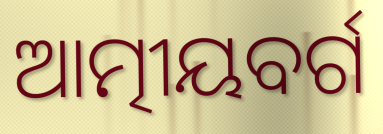
ଆତ୍ମୀୟବର୍ଗ